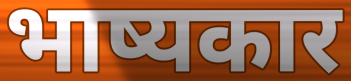
भाष्यकार